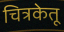
चित्रकेतू